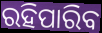
ରହିପାରିବ